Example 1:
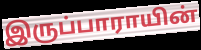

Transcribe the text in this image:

இருப்பாராயின்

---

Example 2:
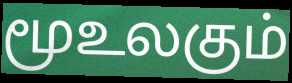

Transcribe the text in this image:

மூஉலகும்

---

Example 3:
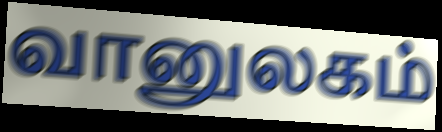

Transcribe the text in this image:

வானுலகம்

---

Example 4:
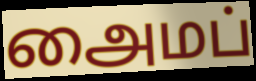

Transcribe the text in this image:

அைமப்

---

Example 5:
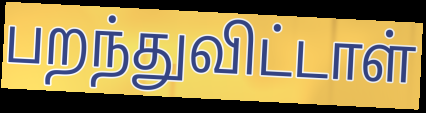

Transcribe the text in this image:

பறந்துவிட்டாள்